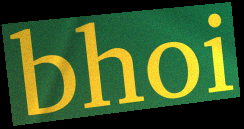
bhoi